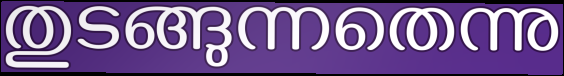
തുടങ്ങുന്നതെന്നു